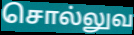
சொல்லுவ